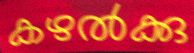
കഴൽക്കു